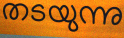
തടയുന്നു